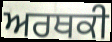
ਅਰਥਕੀ